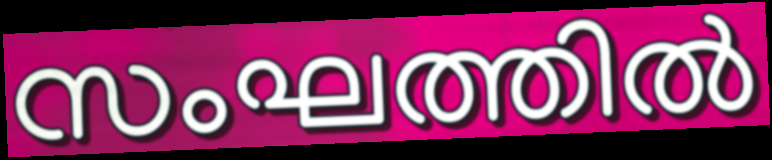
സംഘത്തിൽ